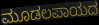
ಮೂಡಲಪಾಯದ